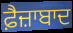
ਫ਼ੈਜ਼ਾਬਾਦ